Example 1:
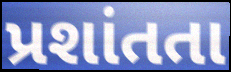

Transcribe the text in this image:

પ્રશાંતતા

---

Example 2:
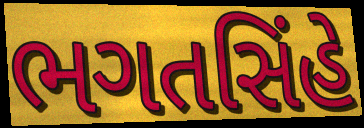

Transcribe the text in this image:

ભગતસિંહે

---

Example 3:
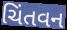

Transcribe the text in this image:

ચિંતવન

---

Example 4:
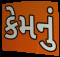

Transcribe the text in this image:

કેમનું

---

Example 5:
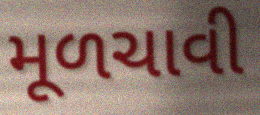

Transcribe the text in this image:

મૂળચાવી